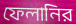
ফেলানির